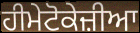
ਹੀਮੇਟੋਕੇਜ਼ੀਆ